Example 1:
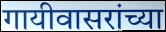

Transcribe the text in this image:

गायीवासरांच्या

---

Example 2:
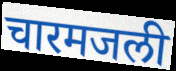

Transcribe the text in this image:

चारमजली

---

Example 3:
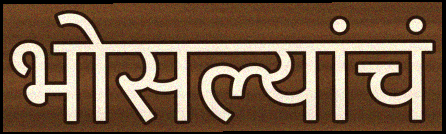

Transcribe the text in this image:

भोसल्यांचं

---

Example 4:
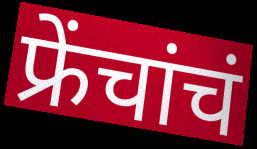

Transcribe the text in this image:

फ्रेंचांचं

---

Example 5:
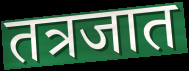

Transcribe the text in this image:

तत्रजात